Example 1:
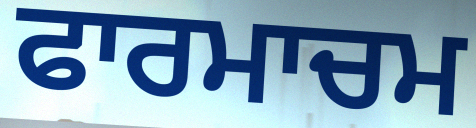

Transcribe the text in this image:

ਫਾਰਮਾਚਮ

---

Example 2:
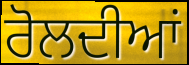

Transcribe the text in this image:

ਰੋਲਦੀਆਂ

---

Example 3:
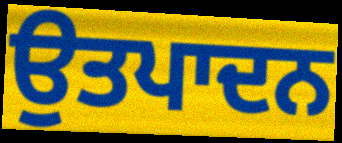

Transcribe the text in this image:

ਉਤਪਾਦਨ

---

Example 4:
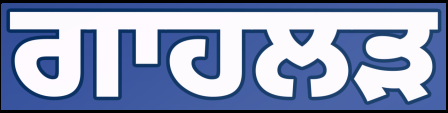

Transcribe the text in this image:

ਗਾਹਲੜ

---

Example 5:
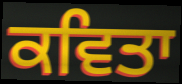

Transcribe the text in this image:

ਕਵਿਤਾ